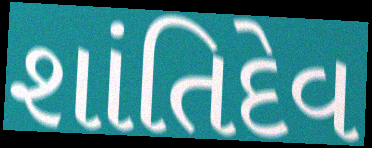
શાંતિદેવ